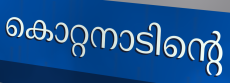
കൊറ്റനാടിന്റെ